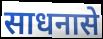
साधनासे